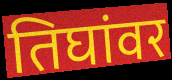
तिघांवर